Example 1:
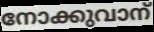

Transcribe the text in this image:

നോക്കുവാന്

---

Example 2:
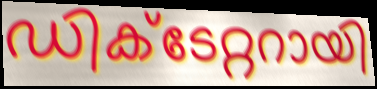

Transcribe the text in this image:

ഡിക്ടേറ്ററായി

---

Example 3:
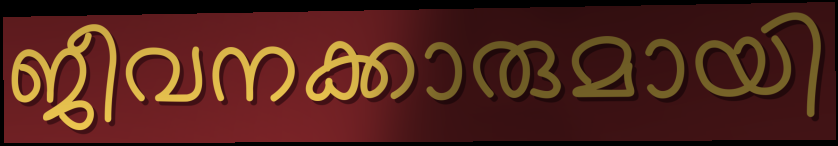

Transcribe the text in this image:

ജീവനക്കാരുമായി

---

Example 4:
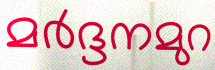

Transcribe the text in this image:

മർദ്ദനമുറ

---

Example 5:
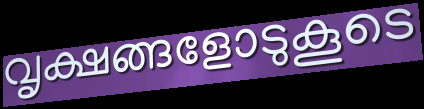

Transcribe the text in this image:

വൃക്ഷങ്ങളോടുകൂടെ